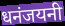
धनंजयनी